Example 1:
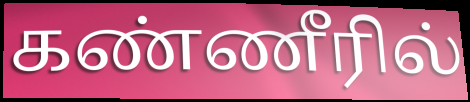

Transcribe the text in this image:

கண்ணீரில்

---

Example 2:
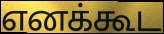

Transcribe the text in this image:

எனக்கூட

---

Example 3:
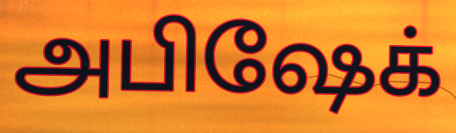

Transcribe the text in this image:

அபிஷேக்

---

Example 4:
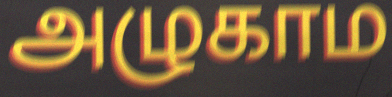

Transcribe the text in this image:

அழுகாம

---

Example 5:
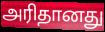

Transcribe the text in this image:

அரிதானது